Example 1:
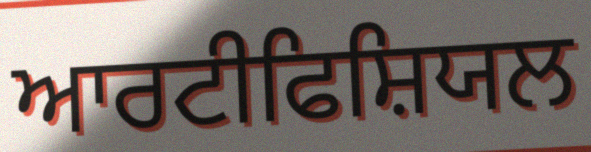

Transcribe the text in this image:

ਆਰਟੀਫਿਸ਼ਿਯਲ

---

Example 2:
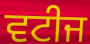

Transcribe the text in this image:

ਵਟੀਜ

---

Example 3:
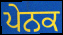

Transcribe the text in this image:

ਪੇਨਕ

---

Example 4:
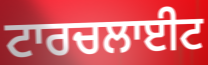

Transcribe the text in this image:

ਟਾਰਚਲਾਈਟ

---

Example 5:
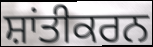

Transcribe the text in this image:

ਸ਼ਾਂਤੀਕਰਨ